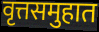
वृत्तसमुहात